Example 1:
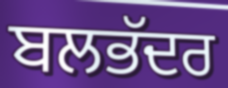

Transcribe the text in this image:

ਬਲਭੱਦਰ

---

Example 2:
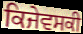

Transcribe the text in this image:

ਕਿਜੇਵਸਕੀ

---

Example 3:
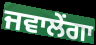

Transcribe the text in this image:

ਜਵਾਲੇਂਗਾ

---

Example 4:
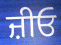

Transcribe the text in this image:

ਜ਼ੀਓ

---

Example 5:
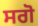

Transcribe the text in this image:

ਸਗੋ